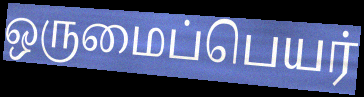
ஒருமைப்பெயர்